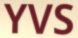
YVS